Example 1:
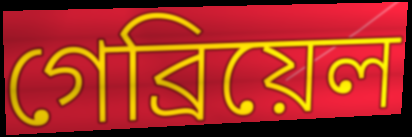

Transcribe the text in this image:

গেব্রিয়েল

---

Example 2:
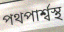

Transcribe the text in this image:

পথপার্শ্বস্থ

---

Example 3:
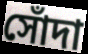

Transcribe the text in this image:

সোঁদা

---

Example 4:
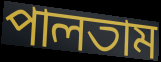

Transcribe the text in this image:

পালতাম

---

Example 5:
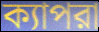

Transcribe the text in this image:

ক্যাপরা